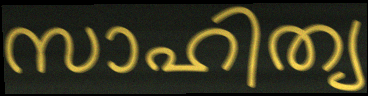
സാഹിത്യ